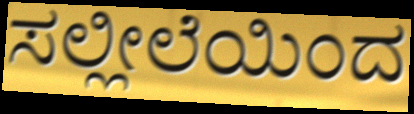
ಸಲ್ಲೀಲೆಯಿಂದ